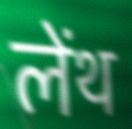
लेंथ